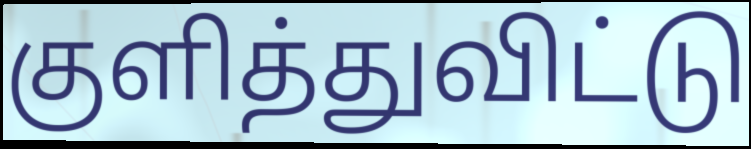
குளித்துவிட்டு